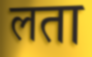
लता